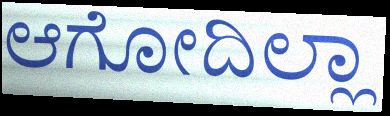
ಆಗೋದಿಲ್ಲಾ